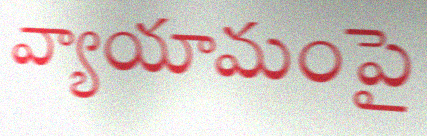
వ్యాయామంపై